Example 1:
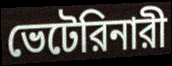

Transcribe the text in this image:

ভেটেরিনারী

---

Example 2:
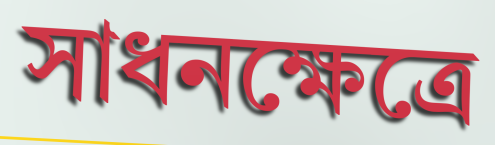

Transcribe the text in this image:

সাধনক্ষেত্রে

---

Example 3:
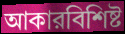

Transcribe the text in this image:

আকারবিশিষ্ট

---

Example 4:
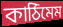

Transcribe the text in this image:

কাঠিমেম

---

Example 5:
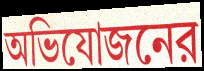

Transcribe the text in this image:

অভিযোজনের